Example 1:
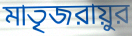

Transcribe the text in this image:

মাতৃজরায়ুর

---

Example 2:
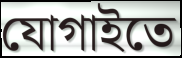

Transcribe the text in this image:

যোগাইতে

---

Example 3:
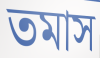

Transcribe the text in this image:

তমাস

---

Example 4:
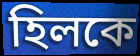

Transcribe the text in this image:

হিলকে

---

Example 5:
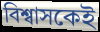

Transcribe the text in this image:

বিশ্বাসকেই